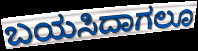
ಬಯಸಿದಾಗಲೂ